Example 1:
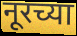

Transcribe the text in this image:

नूरच्या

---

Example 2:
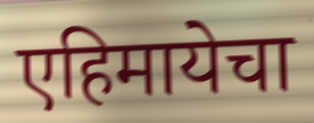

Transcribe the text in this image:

एहिमायेचा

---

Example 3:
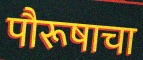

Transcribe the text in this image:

पौरूषाचा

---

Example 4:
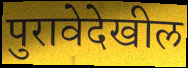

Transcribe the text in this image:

पुरावेदेखील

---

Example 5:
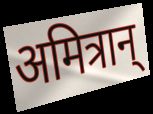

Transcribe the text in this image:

अमित्रान्